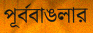
পূর্ববাঙলার